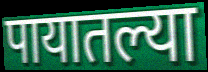
पायातल्या